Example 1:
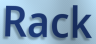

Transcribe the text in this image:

Rack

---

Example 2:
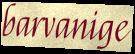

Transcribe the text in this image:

barvanige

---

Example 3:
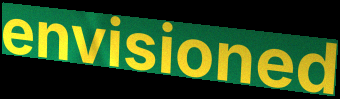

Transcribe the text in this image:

envisioned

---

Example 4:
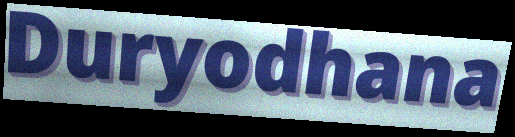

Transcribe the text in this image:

Duryodhana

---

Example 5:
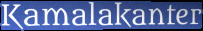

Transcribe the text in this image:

Kamalakanter